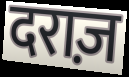
दराज़